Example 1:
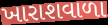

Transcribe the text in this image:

ખારાશવાળા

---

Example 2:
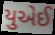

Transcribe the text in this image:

યુએઈ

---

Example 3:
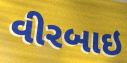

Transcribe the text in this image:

વીરબાઇ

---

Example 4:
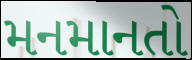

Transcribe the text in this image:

મનમાનતો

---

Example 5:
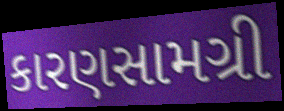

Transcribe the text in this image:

કારણસામગ્રી